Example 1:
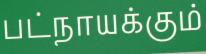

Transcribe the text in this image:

பட்நாயக்கும்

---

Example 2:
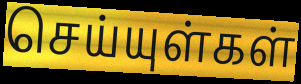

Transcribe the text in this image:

செய்யுள்கள்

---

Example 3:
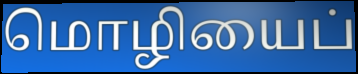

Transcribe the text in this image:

மொழியைப்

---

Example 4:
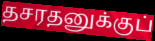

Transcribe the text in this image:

தசரதனுக்குப்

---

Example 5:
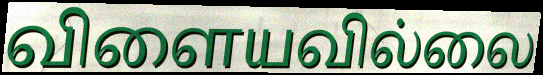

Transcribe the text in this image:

விளையவில்லை